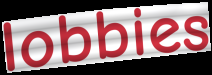
lobbies